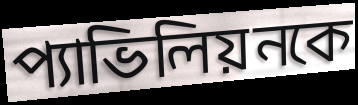
প্যাভিলিয়নকে